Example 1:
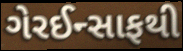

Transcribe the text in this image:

ગેરઈન્સાફથી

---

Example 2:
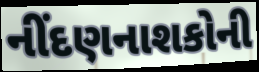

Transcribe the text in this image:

નીંદણનાશકોની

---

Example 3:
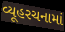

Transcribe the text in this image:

વ્યૂહરચનામાં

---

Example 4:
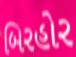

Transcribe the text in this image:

બિરહોર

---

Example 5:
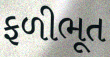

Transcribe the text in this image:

ફળીભૂત